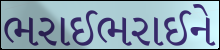
ભરાઈભરાઈને